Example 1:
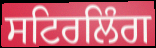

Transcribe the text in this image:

ਸਟਿਰਲਿੰਗ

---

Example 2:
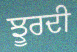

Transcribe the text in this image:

ਝੂਰਦੀ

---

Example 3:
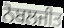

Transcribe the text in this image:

ਨੋਬਲਜੀਤ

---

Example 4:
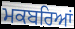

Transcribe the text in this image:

ਮਕਬਰਿਆਂ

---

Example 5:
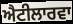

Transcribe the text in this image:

ਐਟੀਲਾਰਵਾ